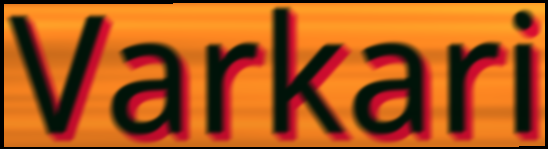
Varkari